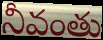
నీవంతు